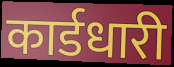
कार्डधारी